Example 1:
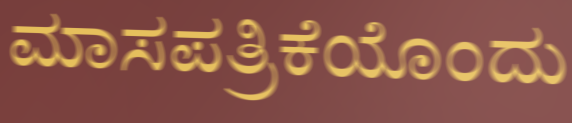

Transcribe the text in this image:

ಮಾಸಪತ್ರಿಕೆಯೊಂದು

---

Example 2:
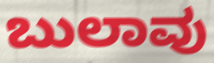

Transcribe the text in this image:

ಬುಲಾವು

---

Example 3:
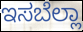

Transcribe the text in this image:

ಇಸಬೆಲ್ಲಾ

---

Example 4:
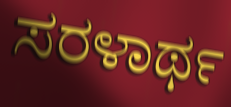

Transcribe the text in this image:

ಸರಳಾರ್ಥ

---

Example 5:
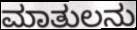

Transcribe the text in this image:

ಮಾತುಲನು